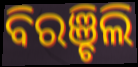
ବିରଞ୍ଚିଲି